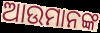
ଆଉମାନଙ୍କ